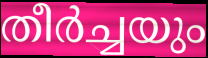
തീർച്ചയും